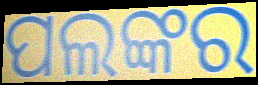
ପଲଙ୍କର